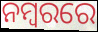
ନମ୍ବରରେ